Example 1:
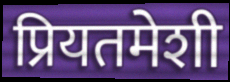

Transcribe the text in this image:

प्रियतमेशी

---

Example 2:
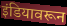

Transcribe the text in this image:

इंडियावरून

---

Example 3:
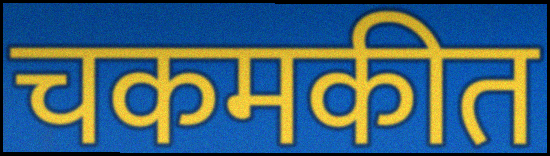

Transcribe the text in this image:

चकमकीत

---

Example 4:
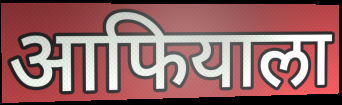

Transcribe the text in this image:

आफियाला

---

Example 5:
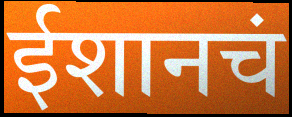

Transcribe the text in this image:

ईशानचं